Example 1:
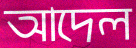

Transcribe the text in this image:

আদেল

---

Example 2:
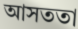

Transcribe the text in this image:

আসততা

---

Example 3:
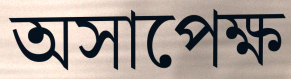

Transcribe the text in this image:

অসাপেক্ষ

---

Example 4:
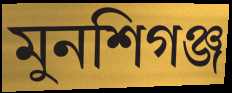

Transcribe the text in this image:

মুনশিগঞ্জ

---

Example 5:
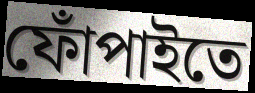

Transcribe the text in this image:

ফোঁপাইতে